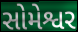
સોમેશ્વર